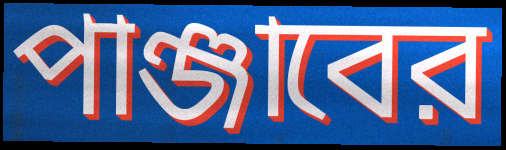
পাঞ্জাবের